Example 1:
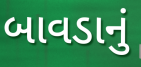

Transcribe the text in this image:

બાવડાનું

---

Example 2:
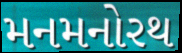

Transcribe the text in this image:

મનમનોરથ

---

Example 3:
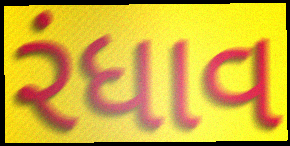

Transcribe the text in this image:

રંધાવ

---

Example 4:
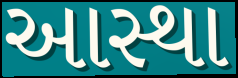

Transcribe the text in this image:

આસ્થા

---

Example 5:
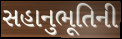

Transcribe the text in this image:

સહાનુભૂતિની